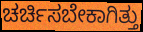
ಚರ್ಚಿಸಬೇಕಾಗಿತ್ತು